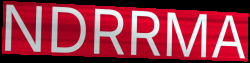
NDRRMA